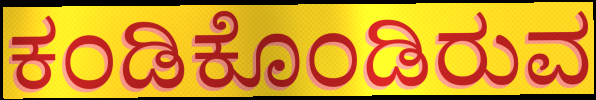
ಕಂಡಿಕೊಂಡಿರುವ